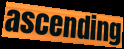
ascending